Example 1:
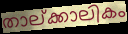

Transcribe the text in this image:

താല്ക്കാലികം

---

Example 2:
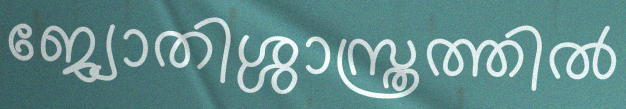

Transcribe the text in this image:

ജ്യോതിശ്ശാസ്ത്രത്തിൽ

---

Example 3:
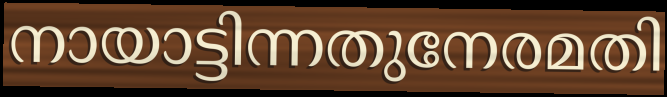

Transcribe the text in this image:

നായാട്ടിന്നതുനേരമതി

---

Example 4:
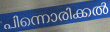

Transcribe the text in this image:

പിന്നൊരിക്കൽ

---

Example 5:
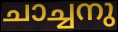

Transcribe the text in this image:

ചാച്ചനു